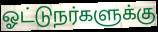
ஓட்டுநர்களுக்கு